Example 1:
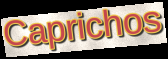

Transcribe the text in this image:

Caprichos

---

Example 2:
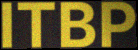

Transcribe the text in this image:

ITBP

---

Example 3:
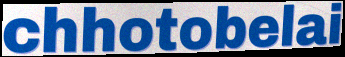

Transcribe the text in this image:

chhotobelai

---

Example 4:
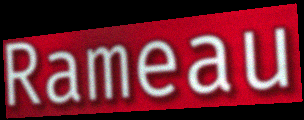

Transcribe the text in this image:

Rameau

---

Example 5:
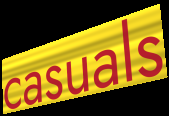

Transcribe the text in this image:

casuals